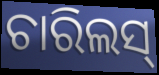
ଚାରିଲସ୍